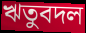
ঋতুবদল